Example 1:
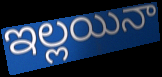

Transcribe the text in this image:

ఇల్లయినా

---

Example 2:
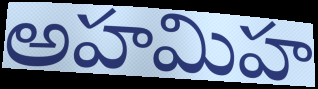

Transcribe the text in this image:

అహమిహ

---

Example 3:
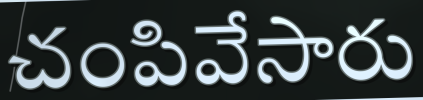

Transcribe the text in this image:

చంపివేసారు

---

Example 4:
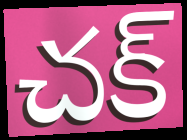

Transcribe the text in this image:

చక్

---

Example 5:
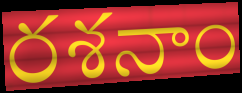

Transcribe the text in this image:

రశనాం